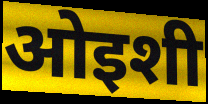
ओइशी